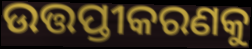
ଉତ୍ତପ୍ତୀକରଣକୁ